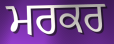
ਮਰਕਰ